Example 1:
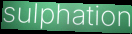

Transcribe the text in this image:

sulphation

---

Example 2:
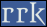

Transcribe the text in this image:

rrk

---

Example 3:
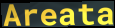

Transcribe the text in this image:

Areata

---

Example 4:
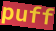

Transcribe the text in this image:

puff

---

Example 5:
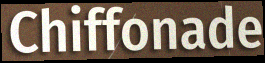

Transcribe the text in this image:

Chiffonade